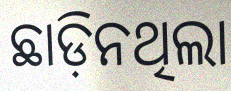
ଛାଡ଼ିନଥିଲା